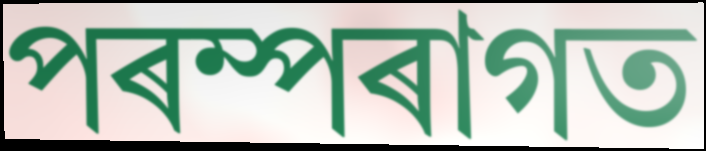
পৰম্পৰাগত